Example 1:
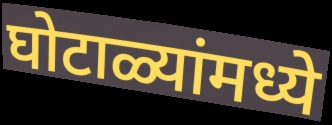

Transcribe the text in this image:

घोटाळ्यांमध्ये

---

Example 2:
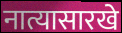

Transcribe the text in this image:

नात्यासारखे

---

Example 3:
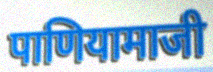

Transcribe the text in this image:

पाणियामाजी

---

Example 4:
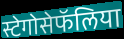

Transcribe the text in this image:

स्टेगोसेफॅलिया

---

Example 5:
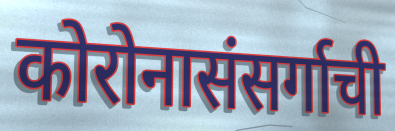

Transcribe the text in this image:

कोरोनासंसर्गाची